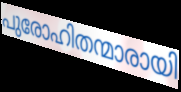
പുരോഹിതന്മാരായി